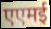
एएमई